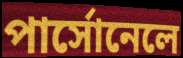
পার্সোনেলে